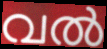
വൽ